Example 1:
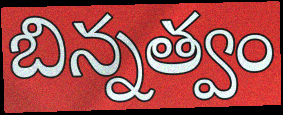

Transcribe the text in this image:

బిన్నత్వం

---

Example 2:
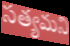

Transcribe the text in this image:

సత్యమని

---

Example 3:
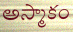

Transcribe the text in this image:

అస్మాకం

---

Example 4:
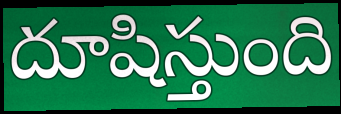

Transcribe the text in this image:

దూషిస్తుంది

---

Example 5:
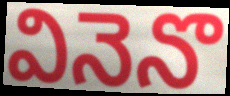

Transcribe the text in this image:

వినెనొ